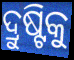
ଦ୍ରୁଷ୍ଟିକୁ